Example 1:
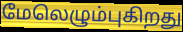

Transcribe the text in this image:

மேலெழும்புகிறது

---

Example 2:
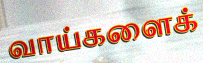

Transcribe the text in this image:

வாய்களைக்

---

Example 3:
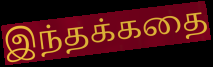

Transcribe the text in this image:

இந்தக்கதை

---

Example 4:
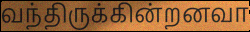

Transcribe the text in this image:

வந்திருக்கின்றனவா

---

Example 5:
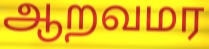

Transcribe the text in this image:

ஆறவமர